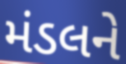
મંડલને